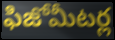
ఫిజోమీటర్ల